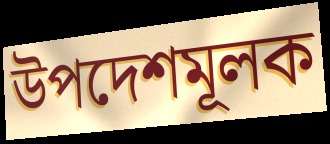
উপদেশমূলক